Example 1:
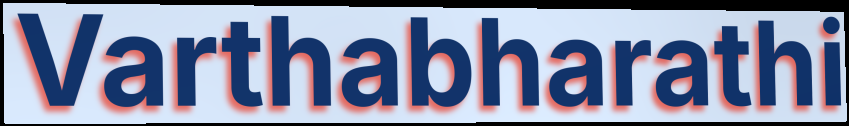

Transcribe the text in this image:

Varthabharathi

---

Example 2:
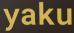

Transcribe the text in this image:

yaku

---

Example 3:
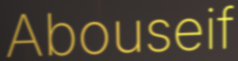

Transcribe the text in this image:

Abouseif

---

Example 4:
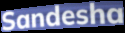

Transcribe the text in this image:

Sandesha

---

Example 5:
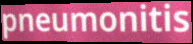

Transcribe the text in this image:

pneumonitis